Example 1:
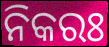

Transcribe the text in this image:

ନିକରଃ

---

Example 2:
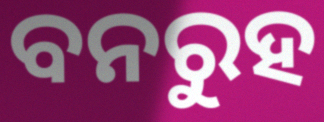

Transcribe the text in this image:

ବନରୁହ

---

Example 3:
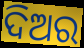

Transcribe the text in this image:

ଦିଅର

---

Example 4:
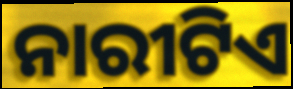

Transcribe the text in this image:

ନାରୀଟିଏ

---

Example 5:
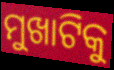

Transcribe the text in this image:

ମୁଖାଟିକୁ